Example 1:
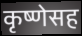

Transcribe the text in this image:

कृष्णेसह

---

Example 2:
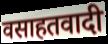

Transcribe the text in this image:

वसाहतवादी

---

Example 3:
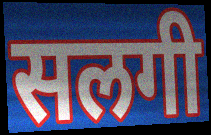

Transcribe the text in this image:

सलगी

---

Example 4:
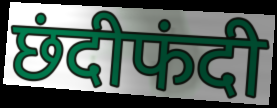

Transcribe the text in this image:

छंदीफंदी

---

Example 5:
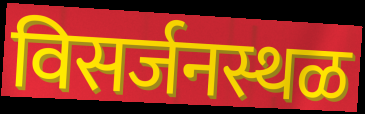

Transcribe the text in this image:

विसर्जनस्थळ